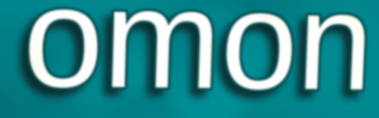
omon